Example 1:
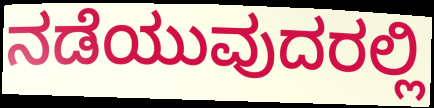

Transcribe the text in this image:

ನಡೆಯುವುದರಲ್ಲಿ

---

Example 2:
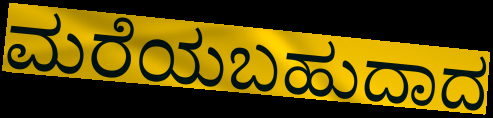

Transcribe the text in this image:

ಮರೆಯಬಹುದಾದ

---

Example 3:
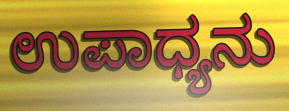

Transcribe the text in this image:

ಉಪಾಧ್ಯನು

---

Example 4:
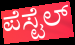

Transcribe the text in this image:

ಪೆಸ್ಟೆಲ್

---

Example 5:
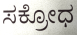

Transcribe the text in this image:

ಸಕ್ರೋಧ